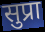
सुप्रा